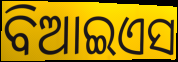
ବିଆଇଏସ